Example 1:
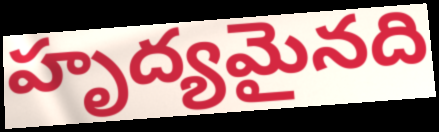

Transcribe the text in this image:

హృద్యమైనది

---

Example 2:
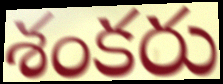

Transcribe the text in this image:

శంకరు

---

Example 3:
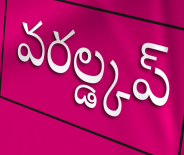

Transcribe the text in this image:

వరల్డ్కప్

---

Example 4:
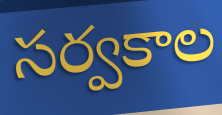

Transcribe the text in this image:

సర్వకాల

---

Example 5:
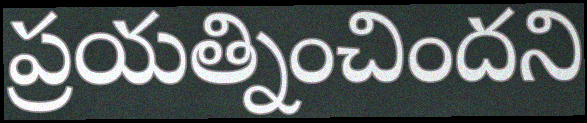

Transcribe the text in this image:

ప్రయత్నించిందని